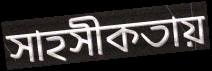
সাহসীকতায়